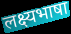
लक्ष्यभाषा